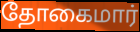
தோகைமார்